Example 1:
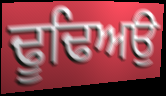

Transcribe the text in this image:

ਢੂਢਿਅਉ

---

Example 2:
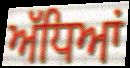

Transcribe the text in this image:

ਅੱਧਿਆਂ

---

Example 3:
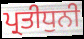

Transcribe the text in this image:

ਪ੍ਰਤੀਧੁਨੀ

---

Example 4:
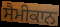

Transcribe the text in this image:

ਸੈਮੀਕਾਨ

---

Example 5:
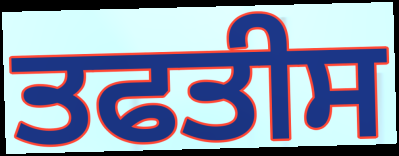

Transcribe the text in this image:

ਤਫਤੀਸ